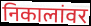
निकालांवर